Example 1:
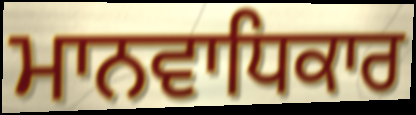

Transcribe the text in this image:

ਮਾਨਵਾਧਿਕਾਰ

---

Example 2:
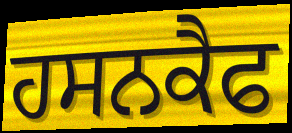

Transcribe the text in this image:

ਹਸਨਕੈਫ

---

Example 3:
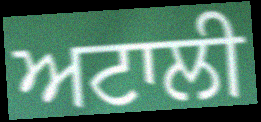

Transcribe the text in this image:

ਅਟਾਲੀ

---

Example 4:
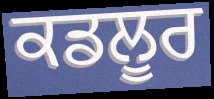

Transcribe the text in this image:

ਕਡਲੂਰ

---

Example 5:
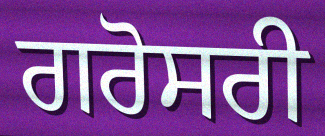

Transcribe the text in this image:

ਗਰੋਸਰੀ